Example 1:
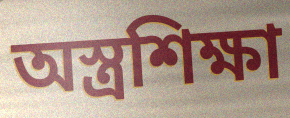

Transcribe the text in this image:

অস্ত্রশিক্ষা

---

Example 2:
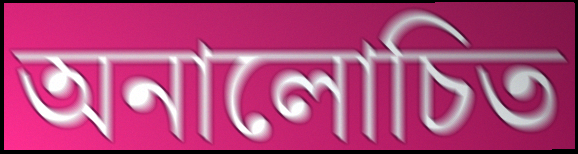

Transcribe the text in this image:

অনালোচিত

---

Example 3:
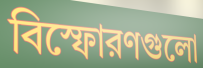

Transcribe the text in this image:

বিস্ফোরণগুলো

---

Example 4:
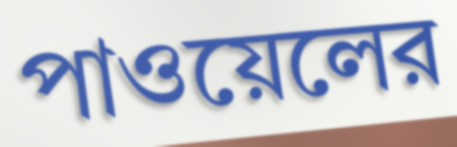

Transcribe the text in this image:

পাওয়েলের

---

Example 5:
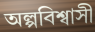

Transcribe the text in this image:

অল্পবিশ্বাসী